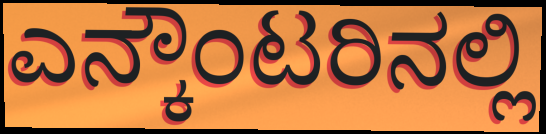
ಎನ್ಕೌಂಟರಿನಲ್ಲಿ